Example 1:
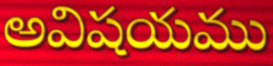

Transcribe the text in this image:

అవిషయము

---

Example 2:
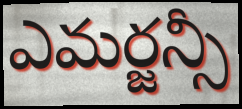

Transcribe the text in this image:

ఎమర్జన్సీ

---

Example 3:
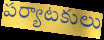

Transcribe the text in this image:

పర్యాటకులు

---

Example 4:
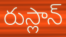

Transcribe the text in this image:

రుస్లాన్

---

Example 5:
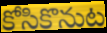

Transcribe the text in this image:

కోసికొనుట